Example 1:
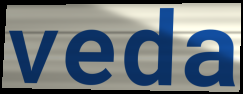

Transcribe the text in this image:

veda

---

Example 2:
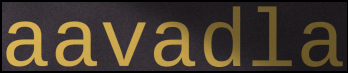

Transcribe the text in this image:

aavadla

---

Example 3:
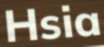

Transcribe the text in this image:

Hsia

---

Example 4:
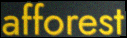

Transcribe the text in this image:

afforest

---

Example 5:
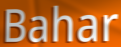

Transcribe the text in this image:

Bahar